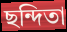
ছন্দিতা